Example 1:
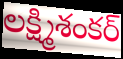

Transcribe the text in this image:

లక్ష్మిశంకర్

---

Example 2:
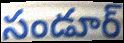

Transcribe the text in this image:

సండూర్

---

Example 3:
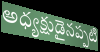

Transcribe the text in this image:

అధ్యక్షుడైనప్పటి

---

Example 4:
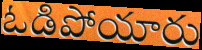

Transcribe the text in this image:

ఓడిపోయారు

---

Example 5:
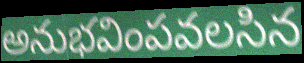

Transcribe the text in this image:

అనుభవింపవలసిన